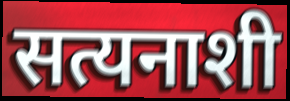
सत्यनाशी